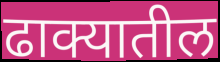
ढाक्यातील